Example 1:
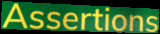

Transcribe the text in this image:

Assertions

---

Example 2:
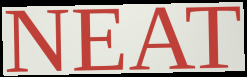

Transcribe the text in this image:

NEAT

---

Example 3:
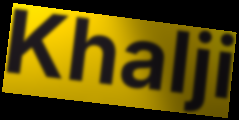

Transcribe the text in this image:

Khalji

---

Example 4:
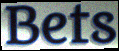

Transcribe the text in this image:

Bets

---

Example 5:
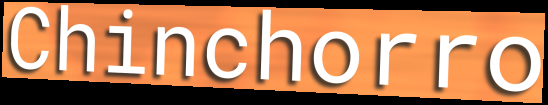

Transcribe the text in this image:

Chinchorro